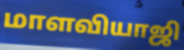
மாளவியாஜி